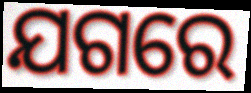
ଯଗରେ